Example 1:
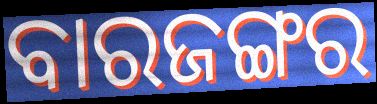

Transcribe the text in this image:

ବାରଜଙ୍ଗର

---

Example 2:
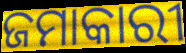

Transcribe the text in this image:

ଜମାକାରୀ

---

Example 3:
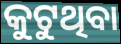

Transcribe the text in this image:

କୁଟୁଥିବା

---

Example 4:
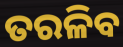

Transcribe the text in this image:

ତରଳିବ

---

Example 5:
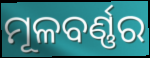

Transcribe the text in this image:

ମୂଳବର୍ଣ୍ଣର